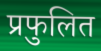
प्रफुलित